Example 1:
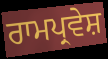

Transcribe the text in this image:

ਰਾਮਪ੍ਰਵੇਸ਼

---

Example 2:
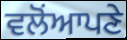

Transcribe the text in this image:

ਵਲੋਂਆਪਣੇ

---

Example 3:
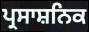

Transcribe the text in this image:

ਪ੍ਰਸਾਸ਼ਨਿਕ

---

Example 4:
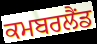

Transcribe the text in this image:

ਕਮਬਰਲੈਂਡ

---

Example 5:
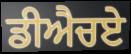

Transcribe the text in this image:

ਡੀਐਚਏ